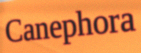
Canephora